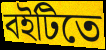
বইটিতে